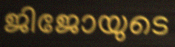
ജിജോയുടെ